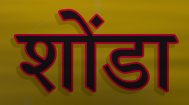
शोंडा